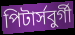
পিটার্সবুর্গী